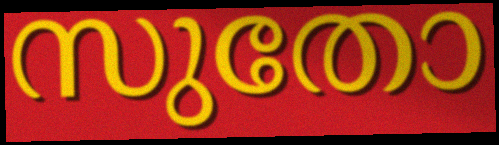
സുതോ